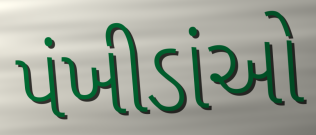
પંખીડાંઓ